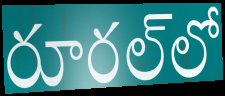
రూరల్‌లో